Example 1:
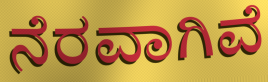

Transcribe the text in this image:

ನೆರವಾಗಿವೆ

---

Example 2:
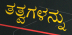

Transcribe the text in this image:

ತತ್ವಗಳನ್ನು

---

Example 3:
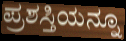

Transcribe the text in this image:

ಪ್ರಶಸ್ತಿಯನ್ನೂ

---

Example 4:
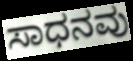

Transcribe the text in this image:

ಸಾಧನವು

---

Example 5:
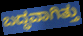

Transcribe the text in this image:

ಬದ್ಧವಾಗಿತ್ತು